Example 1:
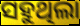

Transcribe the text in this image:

ସହୁଥିଲା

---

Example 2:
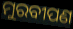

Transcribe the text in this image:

ମୁରବୀପଣ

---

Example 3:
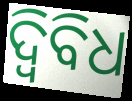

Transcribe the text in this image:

ଦ୍ୱିବିଧ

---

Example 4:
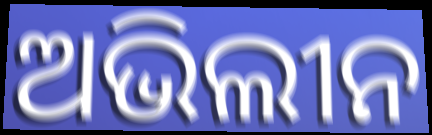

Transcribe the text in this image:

ଅଭିଲୀନ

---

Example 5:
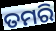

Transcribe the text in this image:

ତମରି